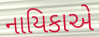
નાયિકાએ